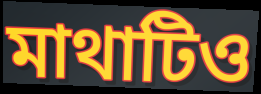
মাথাটিও